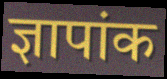
ज्ञापांक